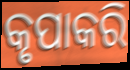
କୃପାକରି